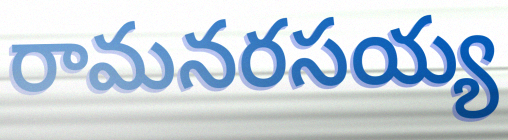
రామనరసయ్య